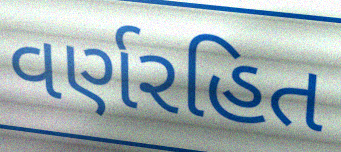
વર્ણરહિત